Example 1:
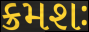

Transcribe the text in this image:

ક્રમશઃ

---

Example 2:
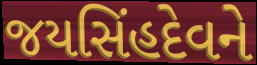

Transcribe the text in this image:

જયસિંહદેવને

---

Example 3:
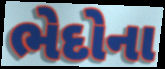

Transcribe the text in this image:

ભેદોના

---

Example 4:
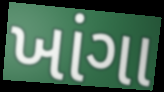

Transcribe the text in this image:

ખાંગા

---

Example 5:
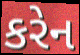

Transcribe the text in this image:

કરેન